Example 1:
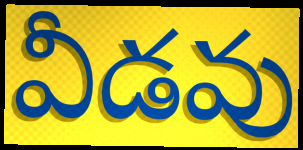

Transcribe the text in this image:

వీడవు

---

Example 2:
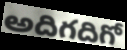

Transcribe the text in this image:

అదిగదిగో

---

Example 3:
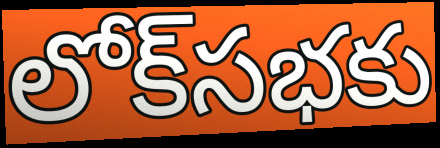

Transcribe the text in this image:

లోక్‌సభకు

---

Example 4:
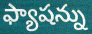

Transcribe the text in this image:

ఫ్యాషన్ను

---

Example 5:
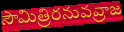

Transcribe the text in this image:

సౌమిత్రిరనువవ్రాజ